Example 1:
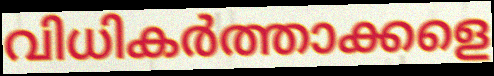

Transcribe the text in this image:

വിധികർത്താക്കളെ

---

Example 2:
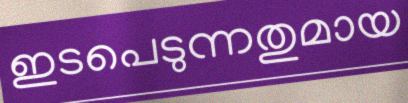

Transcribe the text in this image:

ഇടപെടുന്നതുമായ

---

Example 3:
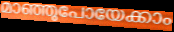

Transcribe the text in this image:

മാഞ്ഞുപോയേക്കാം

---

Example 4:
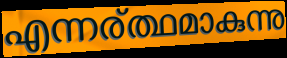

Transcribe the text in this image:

എന്നര്ത്ഥമാകുന്നു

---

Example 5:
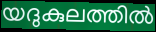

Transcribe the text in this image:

യദുകുലത്തിൽ